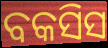
ବକସିସ